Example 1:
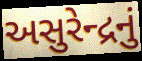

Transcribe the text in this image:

અસુરેન્દ્રનું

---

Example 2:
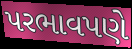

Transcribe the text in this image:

પરભાવપણે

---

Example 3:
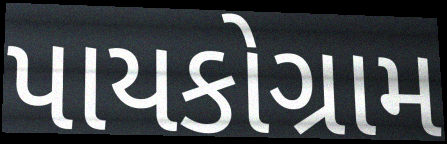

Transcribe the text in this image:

પાયકોગ્રામ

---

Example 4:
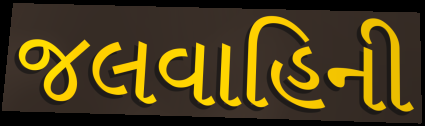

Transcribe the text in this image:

જલવાહિની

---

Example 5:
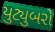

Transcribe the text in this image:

યુટ્યુબરો